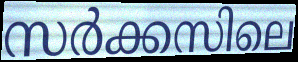
സർക്കസിലെ